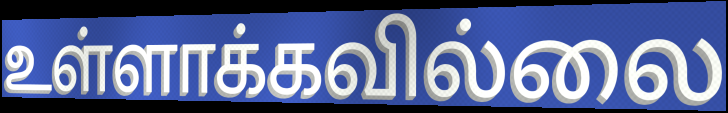
உள்ளாக்கவில்லை